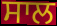
ਸਾਲ